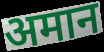
अमान